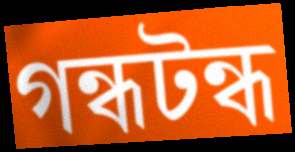
গন্ধটন্ধ